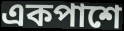
একপাশে